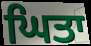
ਘਿਤਾ